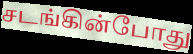
சடங்கின்போது